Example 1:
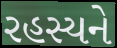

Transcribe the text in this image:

રહસ્યને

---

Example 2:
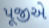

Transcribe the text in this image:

પૂજીએ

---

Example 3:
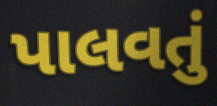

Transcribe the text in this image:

પાલવતું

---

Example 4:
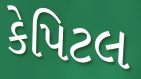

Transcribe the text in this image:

કેપિટલ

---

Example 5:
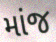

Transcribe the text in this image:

માંજ